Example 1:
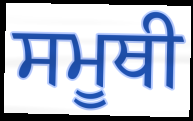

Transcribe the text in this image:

ਸਮੂਥੀ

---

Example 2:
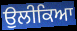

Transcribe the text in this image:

ਉਲੀਕਿਆ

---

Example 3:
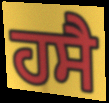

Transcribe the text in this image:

ਹਸੈ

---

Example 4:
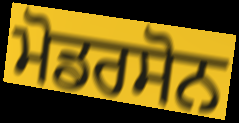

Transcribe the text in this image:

ਮੋਡਰਸੋਨ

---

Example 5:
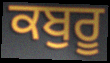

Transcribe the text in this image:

ਕਬੁਰੂ